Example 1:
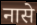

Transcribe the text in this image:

नासे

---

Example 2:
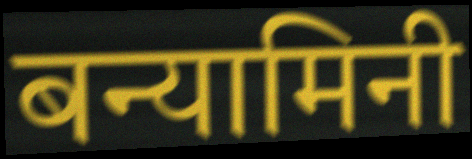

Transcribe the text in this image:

बन्यामिनी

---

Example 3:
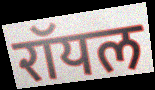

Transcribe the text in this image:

रॉयल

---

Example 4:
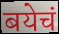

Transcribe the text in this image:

बयेचं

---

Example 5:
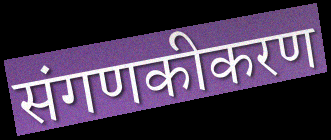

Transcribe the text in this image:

संगणकीकरण